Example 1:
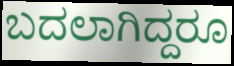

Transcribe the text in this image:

ಬದಲಾಗಿದ್ದರೂ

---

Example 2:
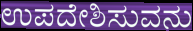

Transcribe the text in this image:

ಉಪದೇಶಿಸುವನು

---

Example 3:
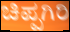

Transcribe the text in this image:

ಚಿಪ್ಪಗಿರಿ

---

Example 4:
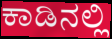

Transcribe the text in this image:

ಕಾಡಿನಲ್ಲಿ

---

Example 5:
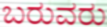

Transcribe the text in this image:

ಬರುವರು